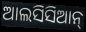
ଆଲସିସିଆନ୍